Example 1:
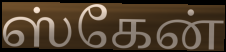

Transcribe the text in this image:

ஸ்கேன்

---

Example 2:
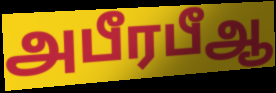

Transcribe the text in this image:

அபீரபீஆ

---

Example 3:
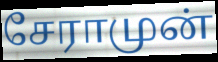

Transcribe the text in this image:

சேராமுன்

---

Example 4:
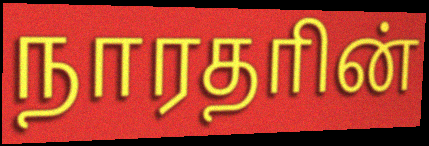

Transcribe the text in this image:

நாரதரின்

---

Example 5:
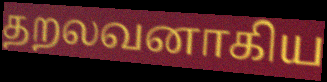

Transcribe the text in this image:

தறலவனாகிய